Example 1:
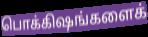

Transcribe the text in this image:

பொக்கிஷங்களைக்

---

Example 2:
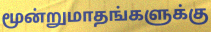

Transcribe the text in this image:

மூன்றுமாதங்களுக்கு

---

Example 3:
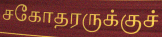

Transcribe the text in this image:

சகோதரருக்குச்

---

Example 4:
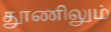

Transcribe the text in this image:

தூணிலும்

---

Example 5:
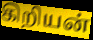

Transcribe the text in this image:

கிறியன்